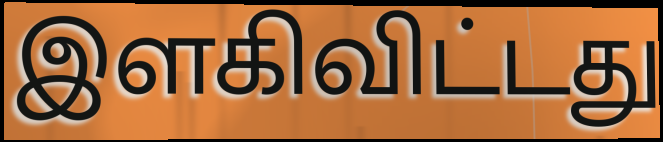
இளகிவிட்டது